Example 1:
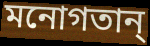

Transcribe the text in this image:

মনোগতান্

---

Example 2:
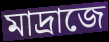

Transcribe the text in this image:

মাদ্রাজে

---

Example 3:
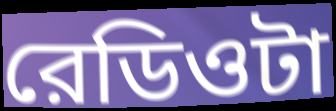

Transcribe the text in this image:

রেডিওটা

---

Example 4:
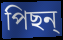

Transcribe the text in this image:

পিছন্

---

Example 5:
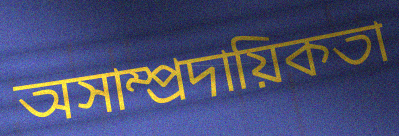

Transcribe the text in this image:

অসাম্প্রদায়িকতা